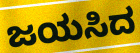
ಜಯಸಿದ